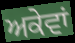
ਅਕੇਵਾਂ